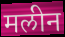
मलीन